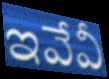
ఇవేవీ